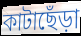
কাটাছেঁড়া